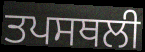
ਤਪਸਥਲੀ